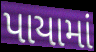
પાયામાં